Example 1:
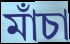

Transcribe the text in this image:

মাঁচা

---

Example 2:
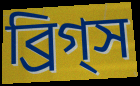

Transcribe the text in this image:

ব্রিগ্‌স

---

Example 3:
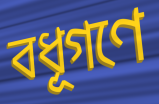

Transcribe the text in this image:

বধূগণে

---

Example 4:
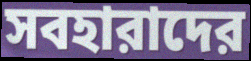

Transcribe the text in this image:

সবহারাদের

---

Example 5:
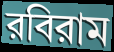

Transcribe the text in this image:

রবিরাম